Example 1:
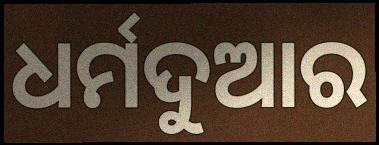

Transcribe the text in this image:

ଧର୍ମଦୁଆର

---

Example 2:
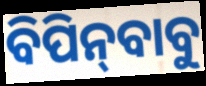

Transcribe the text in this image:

ବିପିନ୍‌ବାବୁ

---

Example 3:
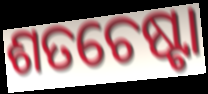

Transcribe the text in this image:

ଶତଚେଷ୍ଟା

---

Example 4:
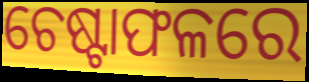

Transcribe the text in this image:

ଚେଷ୍ଟାଫଳରେ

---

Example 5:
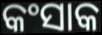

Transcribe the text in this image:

କଂସାକ